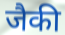
जैकी